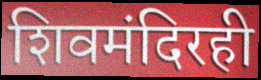
शिवमंदिरही